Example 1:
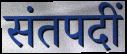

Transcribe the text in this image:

संतपदीं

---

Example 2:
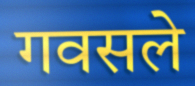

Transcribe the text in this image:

गवसले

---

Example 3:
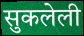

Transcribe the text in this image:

सुकलेली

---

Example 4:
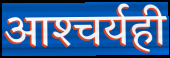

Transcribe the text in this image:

आश्‍चर्यही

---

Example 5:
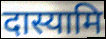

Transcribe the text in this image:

दास्यामि